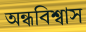
অন্ধবিশ্বাস